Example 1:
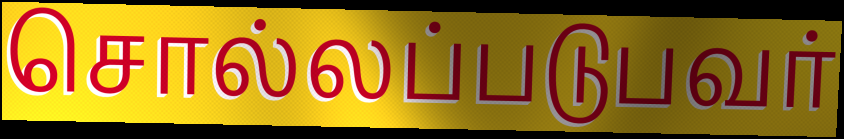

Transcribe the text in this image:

சொல்லப்படுபவர்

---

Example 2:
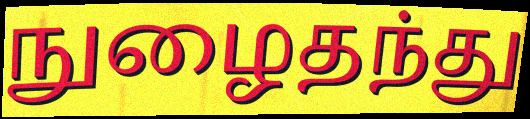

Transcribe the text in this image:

நுழைதந்து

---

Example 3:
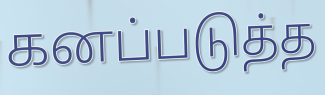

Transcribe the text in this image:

கனப்படுத்த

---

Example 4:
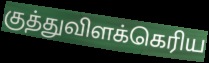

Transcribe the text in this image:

குத்துவிளக்கெரிய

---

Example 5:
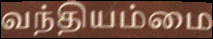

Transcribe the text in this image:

வந்தியம்மை